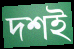
দশই